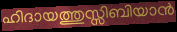
ഹിദായത്തുസ്സിബിയാൻ